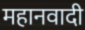
महानवादी